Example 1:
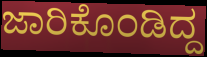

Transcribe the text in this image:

ಜಾರಿಕೊಂಡಿದ್ದ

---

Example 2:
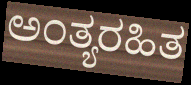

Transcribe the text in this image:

ಅಂತ್ಯರಹಿತ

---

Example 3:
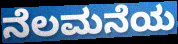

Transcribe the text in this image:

ನೆಲಮನೆಯ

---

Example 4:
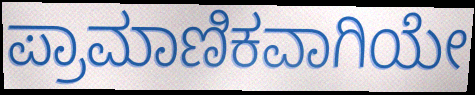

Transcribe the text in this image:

ಪ್ರಾಮಾಣಿಕವಾಗಿಯೇ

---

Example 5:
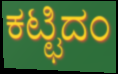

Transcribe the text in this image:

ಕಟ್ಟಿದಂ